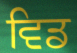
ਵਿਡ